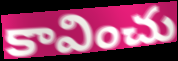
కావించు